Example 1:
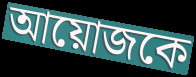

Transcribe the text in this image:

আয়োজকে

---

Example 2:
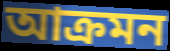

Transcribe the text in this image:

আক্ৰমন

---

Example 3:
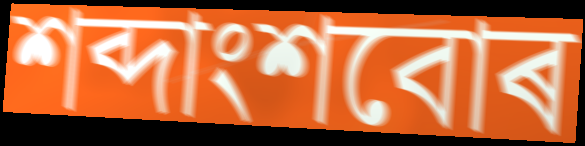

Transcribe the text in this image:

শব্দাংশবোৰ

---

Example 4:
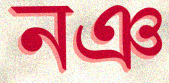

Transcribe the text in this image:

নঞ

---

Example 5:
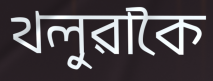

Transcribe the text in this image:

থলুৱাকৈ